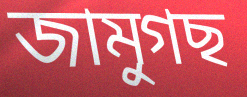
জামুগছ